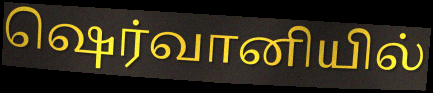
ஷெர்வானியில்